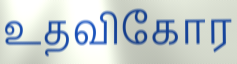
உதவிகோர